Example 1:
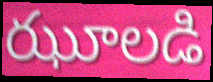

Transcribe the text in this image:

ఝూలడి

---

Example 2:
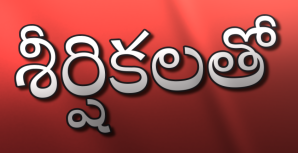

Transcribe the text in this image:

శీర్షికలతో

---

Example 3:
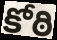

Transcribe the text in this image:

కోఠి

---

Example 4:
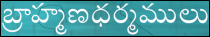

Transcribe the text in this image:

బ్రాహ్మణధర్మములు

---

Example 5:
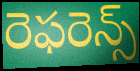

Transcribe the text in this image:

రెఫరెన్స్